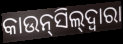
କାଉନ୍‌ସିଲ୍‌ଦ୍ବାରା